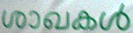
ശാഖകൾ